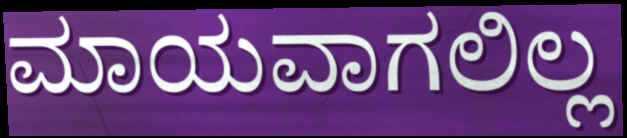
ಮಾಯವಾಗಲಿಲ್ಲ